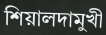
শিয়ালদামুখী